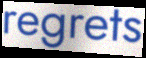
regrets